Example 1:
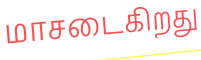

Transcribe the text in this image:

மாசடைகிறது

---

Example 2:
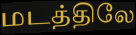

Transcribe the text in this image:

மடத்திலே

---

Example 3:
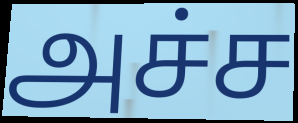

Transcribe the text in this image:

அச்ச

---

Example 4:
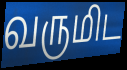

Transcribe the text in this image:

வருமிட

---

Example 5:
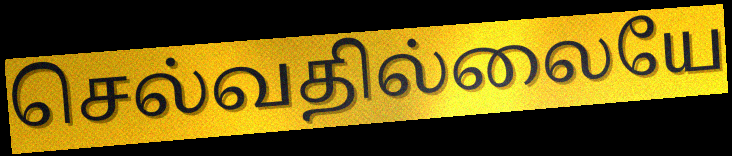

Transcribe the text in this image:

செல்வதில்லையே